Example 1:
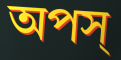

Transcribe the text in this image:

অপস্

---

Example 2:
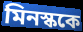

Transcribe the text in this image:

মিনস্ককে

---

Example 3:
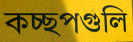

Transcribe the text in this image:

কচ্ছপগুলি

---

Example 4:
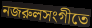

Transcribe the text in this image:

নজরুলসংগীতে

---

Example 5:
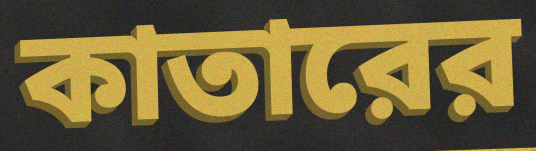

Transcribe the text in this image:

কাতারের